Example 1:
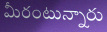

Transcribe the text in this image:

మీరంటున్నారు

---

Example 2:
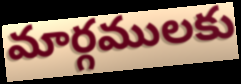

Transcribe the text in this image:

మార్గములకు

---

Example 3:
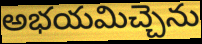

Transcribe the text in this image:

అభయమిచ్చెను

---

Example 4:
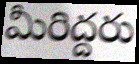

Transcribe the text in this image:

మీరిద్దరు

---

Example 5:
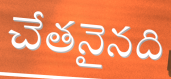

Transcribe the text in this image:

చేతనైనది